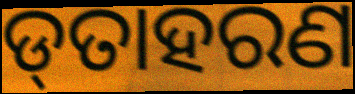
ଡ୍‌ତାହରଣ